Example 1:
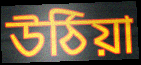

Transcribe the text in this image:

উঠিয়া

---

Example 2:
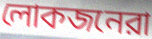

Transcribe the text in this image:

লোকজনেরা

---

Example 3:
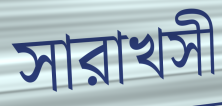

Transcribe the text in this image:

সারাখসী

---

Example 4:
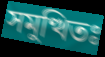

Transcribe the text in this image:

সমুত্থিতঃ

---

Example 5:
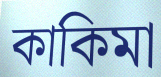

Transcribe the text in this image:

কাকিমা